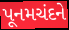
પૂનમચંદને